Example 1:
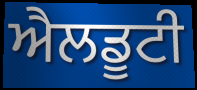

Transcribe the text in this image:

ਐਲਡੂਟੀ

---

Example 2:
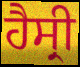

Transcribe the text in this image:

ਹੈਸ੍ਰੀ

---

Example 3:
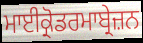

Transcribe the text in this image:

ਮਾਈਕ੍ਰੋਡਰਮਾਬ੍ਰੇਜ਼ਨ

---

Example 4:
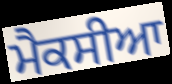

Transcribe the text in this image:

ਮੈਕਸੀਆ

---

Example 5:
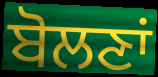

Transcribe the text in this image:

ਬੋਲਣਾਂ